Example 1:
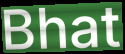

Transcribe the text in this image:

Bhat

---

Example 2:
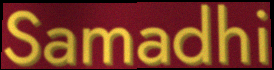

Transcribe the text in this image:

Samadhi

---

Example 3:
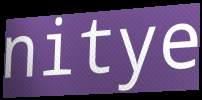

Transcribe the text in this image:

nitye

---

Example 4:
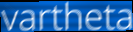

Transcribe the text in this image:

vartheta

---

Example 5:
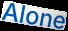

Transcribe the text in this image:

Alone